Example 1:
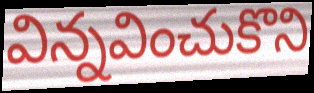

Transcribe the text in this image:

విన్నవించుకొని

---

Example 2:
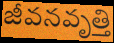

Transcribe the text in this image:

జీవనవృత్తి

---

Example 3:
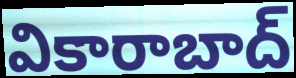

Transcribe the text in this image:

వికారాబాద్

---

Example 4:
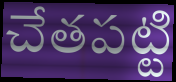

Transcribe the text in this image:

చేతపట్టి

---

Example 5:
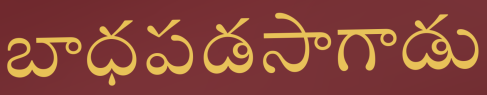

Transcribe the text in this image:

బాధపడసాగాడు